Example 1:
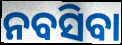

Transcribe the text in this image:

ନବସିବା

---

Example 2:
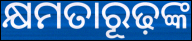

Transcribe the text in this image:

କ୍ଷମତାରୂଢ଼ଙ୍କ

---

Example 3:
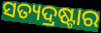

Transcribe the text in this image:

ସତ୍ୟଦ୍ରଷ୍ଟାର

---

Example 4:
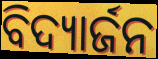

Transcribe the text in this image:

ବିଦ୍ୟାର୍ଜନ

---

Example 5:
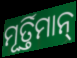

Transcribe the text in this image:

ମୂର୍ତ୍ତିମାନ୍